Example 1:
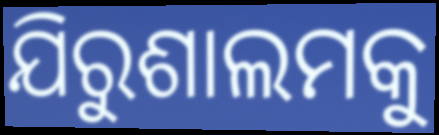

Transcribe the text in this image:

ଯିରୁଶାଲମକୁ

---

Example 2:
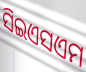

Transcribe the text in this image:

ସିଇଏସଏମ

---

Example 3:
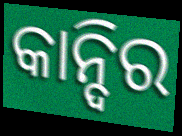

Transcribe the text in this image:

କାନ୍ଦିର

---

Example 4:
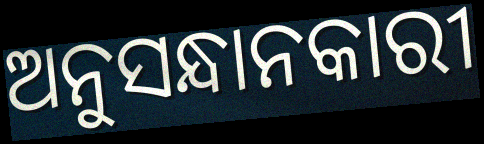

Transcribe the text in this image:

ଅନୁସନ୍ଧାନକାରୀ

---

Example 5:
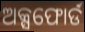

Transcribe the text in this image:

ଅକ୍ସଫୋର୍ଡ